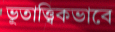
ভূতাত্ত্বিকভাবে